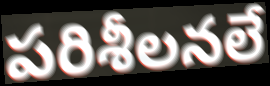
పరిశీలనలే